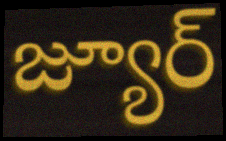
జ్యూర్